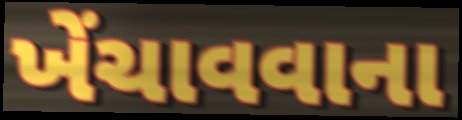
ખેંચાવવાના